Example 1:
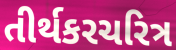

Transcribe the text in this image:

તીર્થકરચરિત્ર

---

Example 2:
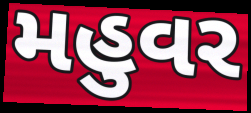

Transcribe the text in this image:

મહુવર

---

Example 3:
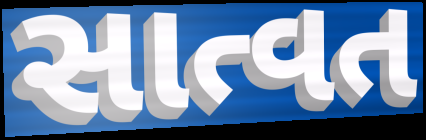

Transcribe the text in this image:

સાત્વત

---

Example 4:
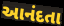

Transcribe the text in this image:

આનંદતા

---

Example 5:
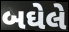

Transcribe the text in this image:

બઘેલે